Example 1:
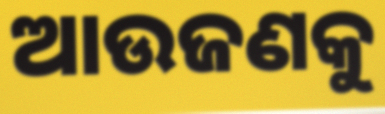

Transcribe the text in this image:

ଆଉଜଣକୁ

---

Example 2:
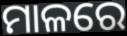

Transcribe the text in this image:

ମାଳରେ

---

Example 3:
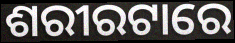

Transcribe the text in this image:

ଶରୀରଟାରେ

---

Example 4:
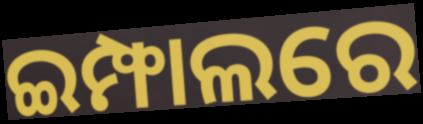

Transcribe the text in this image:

ଇମ୍ଫାଲରେ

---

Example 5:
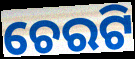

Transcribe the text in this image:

ଚେରଟି